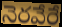
నెరవేరే